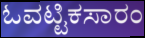
ಓವಟ್ಟಿಕಸಾರಂ